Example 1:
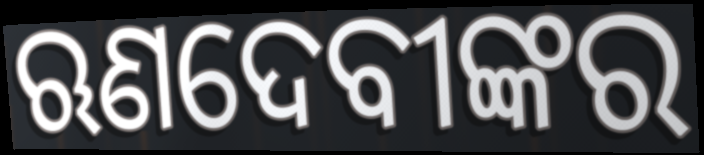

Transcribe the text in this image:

ଋଣଦେବୀଙ୍କର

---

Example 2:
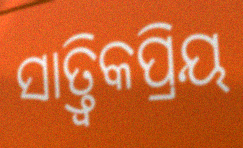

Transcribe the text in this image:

ସାତ୍ତ୍ଵିକପ୍ରିୟ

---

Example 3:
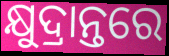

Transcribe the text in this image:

କ୍ଷୁଦ୍ରାନ୍ତରେ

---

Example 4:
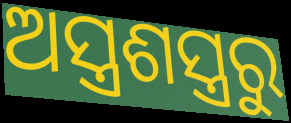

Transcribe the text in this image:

ଅସ୍ତ୍ରଶସ୍ତ୍ରରୁ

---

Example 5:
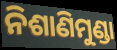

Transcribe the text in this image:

ନିଶାଣିମୁଣ୍ଡା